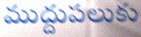
ముద్దుపలుకు